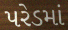
પરેડમાં